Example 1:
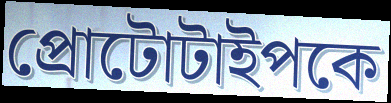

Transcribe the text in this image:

প্রোটোটাইপকে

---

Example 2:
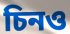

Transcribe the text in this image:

চিনও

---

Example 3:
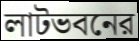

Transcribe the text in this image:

লাটভবনের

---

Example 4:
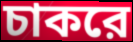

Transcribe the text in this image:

চাকরে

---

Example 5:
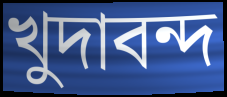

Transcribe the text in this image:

খুদাবন্দ